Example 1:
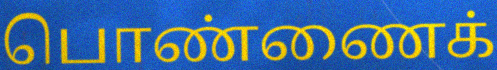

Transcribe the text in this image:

பொண்ணைக்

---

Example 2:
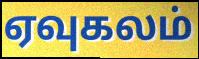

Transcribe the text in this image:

ஏவுகலம்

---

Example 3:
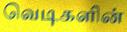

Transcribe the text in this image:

வெடிகளின்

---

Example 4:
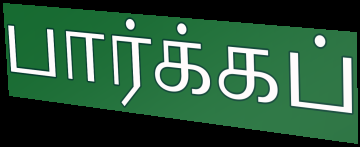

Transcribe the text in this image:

பார்க்கப்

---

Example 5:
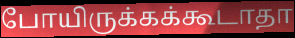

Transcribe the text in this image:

போயிருக்கக்கூடாதா